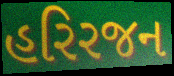
હરિરજન